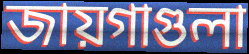
জায়গাগুলা